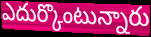
ఎదుర్కొంటున్నారు